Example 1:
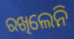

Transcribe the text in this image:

ରଖିଲେନି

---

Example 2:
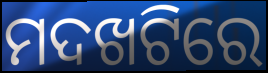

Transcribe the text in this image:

ମଦଖଟିରେ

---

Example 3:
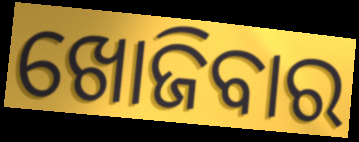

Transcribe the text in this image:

ଖୋଜିବାର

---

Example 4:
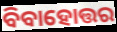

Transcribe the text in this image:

ବିବାହୋତ୍ତର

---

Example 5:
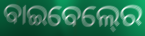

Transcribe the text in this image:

ବାଇବେଲ୍‍ରେ